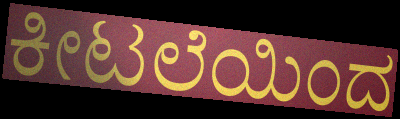
ಕೀಟಲೆಯಿಂದ